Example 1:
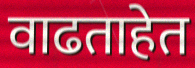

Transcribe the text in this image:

वाढताहेत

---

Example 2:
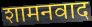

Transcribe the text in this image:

शामनवाद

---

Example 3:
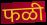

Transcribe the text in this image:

फळी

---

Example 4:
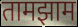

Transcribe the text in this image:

तामझाम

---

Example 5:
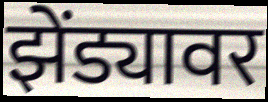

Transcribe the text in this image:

झेंड्यावर